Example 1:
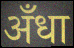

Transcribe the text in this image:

अँधा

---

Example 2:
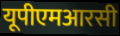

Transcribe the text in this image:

यूपीएमआरसी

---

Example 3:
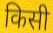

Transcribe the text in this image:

किसी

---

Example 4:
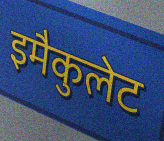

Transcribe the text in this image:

इमैकुलेट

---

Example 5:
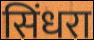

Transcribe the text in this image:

सिंधरा